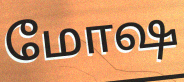
மோஷ